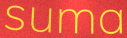
suma